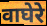
वाघेरे